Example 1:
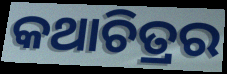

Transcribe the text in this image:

କଥାଚିତ୍ରର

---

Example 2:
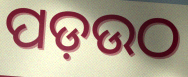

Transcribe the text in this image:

ପଡ଼ଉଠ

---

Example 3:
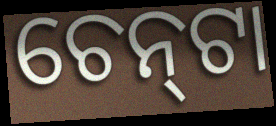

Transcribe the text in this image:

ଚେନ୍‌ଟା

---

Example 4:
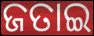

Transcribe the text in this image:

ଜତାଇ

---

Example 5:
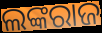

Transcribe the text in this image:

ଲଙ୍କରାଜ